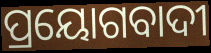
ପ୍ରୟୋଗବାଦୀ